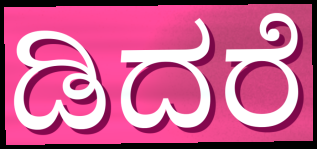
ಡಿದರೆ